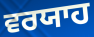
ਵਰਯਾਹ